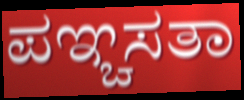
ಪಞ್ಚಸತಾ